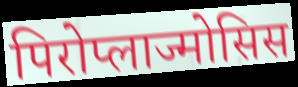
पिरोप्लाज्मोसिस